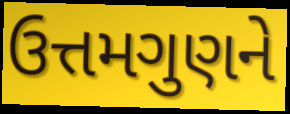
ઉત્તમગુણને